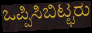
ಒಪ್ಪಿಸಿಬಿಟ್ಟರು